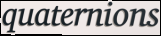
quaternions